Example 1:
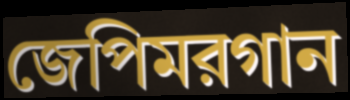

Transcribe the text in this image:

জেপিমরগান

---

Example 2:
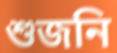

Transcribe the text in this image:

শুজনি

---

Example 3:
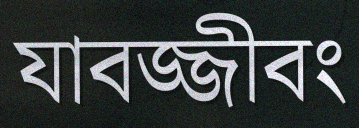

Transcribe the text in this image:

যাবজ্জীবং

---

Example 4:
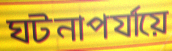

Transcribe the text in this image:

ঘটনাপর্যায়ে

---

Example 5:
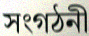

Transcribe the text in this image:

সংগঠনী